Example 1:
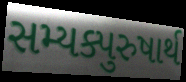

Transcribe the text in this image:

સમ્યક્પુરુષાર્થ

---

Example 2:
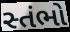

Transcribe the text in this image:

સ્તંભો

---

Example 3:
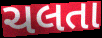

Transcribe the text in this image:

ચલતા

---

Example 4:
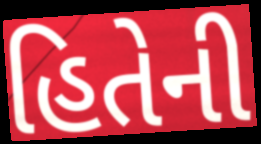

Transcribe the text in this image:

હિતેની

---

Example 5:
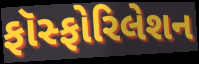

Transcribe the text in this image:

ફૉસ્ફોરિલેશન